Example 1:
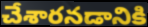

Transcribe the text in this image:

చేశారనడానికి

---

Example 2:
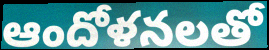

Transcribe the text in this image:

ఆందోళనలతో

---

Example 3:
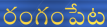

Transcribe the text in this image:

రంగంపేట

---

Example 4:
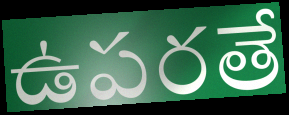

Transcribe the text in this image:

ఉపరతే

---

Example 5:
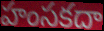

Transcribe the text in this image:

హంసకదా